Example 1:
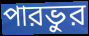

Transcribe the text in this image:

পারভুর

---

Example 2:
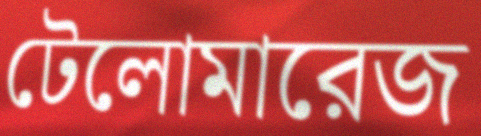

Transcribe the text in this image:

টেলোমারেজ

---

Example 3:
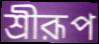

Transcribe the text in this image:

শ্রীরূপ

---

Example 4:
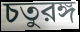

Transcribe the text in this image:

চতুরঙ্গ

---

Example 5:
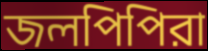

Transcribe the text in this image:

জলপিপিরা